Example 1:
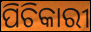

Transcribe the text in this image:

ପିଚିକାରୀ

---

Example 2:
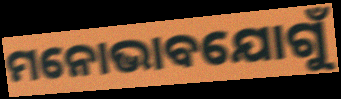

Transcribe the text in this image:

ମନୋଭାବଯୋଗୁଁ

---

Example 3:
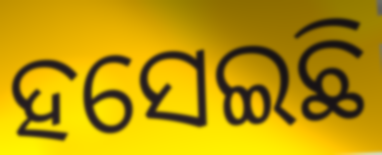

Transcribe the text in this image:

ହସେଇଛି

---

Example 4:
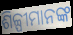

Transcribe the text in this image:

ଶିଳ୍ପୀମାନଙ୍କ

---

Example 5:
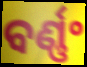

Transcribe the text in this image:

ବର୍ଣ୍ଣଂ